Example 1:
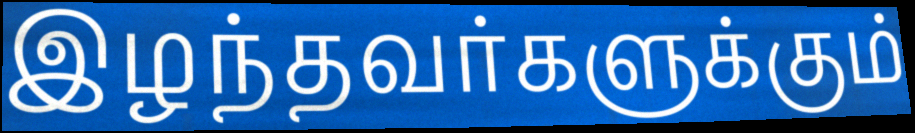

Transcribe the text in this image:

இழந்தவர்களுக்கும்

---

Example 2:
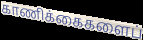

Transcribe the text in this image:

காணிக்கைகளைப்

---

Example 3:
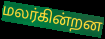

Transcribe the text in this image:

மலர்கின்றன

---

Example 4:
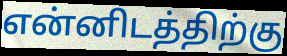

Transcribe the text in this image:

என்னிடத்திற்கு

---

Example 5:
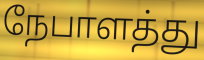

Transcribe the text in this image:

நேபாளத்து